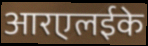
आरएलईके